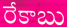
రేకాబు